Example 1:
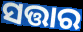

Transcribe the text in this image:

ସତ୍ତାର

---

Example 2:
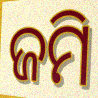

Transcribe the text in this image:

ଜମି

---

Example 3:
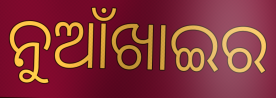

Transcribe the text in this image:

ନୁଆଁଖାଇର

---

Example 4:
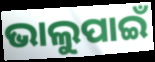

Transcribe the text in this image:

ଭାଲୁପାଇଁ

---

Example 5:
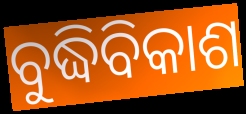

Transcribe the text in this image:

ବୁଦ୍ଧିବିକାଶ